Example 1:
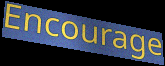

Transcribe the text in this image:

Encourage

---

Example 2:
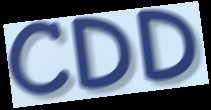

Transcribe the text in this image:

CDD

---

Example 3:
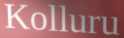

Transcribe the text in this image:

Kolluru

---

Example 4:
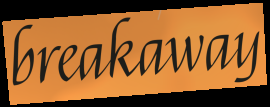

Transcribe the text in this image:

breakaway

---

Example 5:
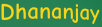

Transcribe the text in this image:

Dhananjay